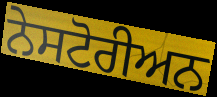
ਨੇਸਟੋਰੀਅਨ